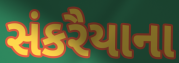
સંકરૈયાના